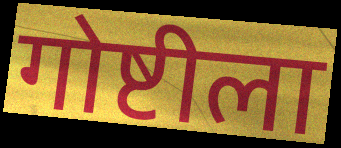
गोष्टीला